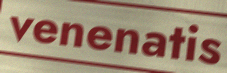
venenatis